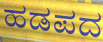
ಹಡಪದ